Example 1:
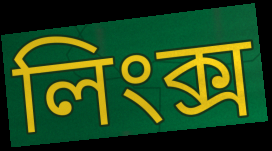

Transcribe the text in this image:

লিংক্স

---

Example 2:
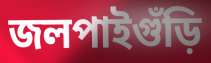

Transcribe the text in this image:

জলপাইগুঁড়ি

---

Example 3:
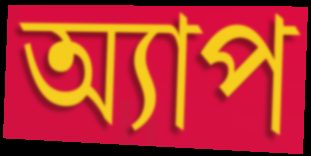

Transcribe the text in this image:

অ্যাপ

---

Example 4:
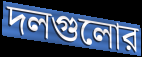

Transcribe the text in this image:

দলগুলোর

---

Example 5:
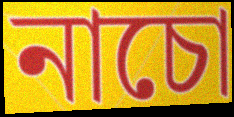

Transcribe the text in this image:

নাচো